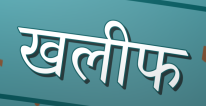
खलीफ